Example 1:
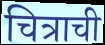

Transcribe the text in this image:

चित्राची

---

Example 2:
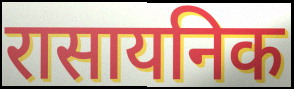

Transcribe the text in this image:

रासायनिक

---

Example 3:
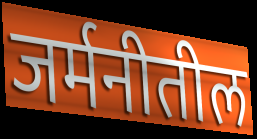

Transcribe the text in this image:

जर्मनीतील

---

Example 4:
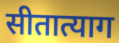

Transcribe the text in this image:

सीतात्याग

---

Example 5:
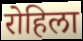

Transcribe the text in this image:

रोहिला